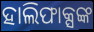
ହାଲିଫାକ୍ସଙ୍କ